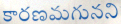
కారణమగునని